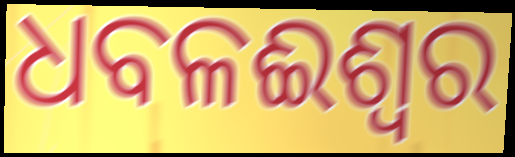
ଧବଳଈଶ୍ବର